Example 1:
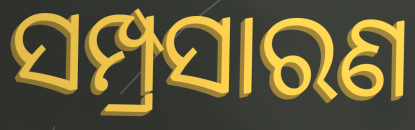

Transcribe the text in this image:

ସମ୍ପ୍ରସାରଣ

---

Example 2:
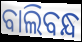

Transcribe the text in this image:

ବାଲିବନ୍ଧ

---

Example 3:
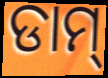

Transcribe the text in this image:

ଡାମ୍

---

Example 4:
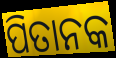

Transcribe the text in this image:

ପିତାନକ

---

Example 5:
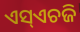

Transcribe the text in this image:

ଏସ୍ଏଚଜି